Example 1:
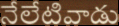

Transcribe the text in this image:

నేలేటివాడు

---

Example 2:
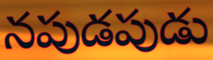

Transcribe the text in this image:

నపుడపుడు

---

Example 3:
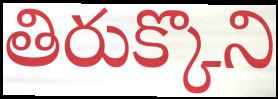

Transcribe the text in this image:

తిరుక్కొని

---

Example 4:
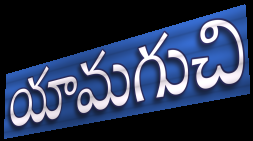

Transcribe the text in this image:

యామగుచి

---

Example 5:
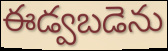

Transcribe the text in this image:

ఈడ్వబడెను